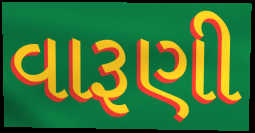
વારૂણી